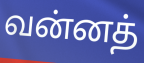
வன்னத்